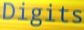
Digits